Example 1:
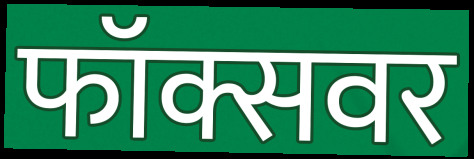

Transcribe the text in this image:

फॉक्सवर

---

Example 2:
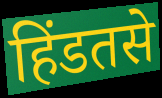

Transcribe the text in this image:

हिंडतसे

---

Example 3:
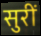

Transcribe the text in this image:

सुरीं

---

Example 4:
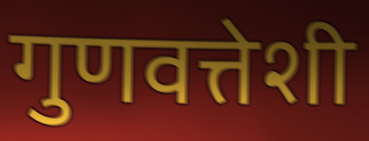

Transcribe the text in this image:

गुणवत्तेशी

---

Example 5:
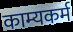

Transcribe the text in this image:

काम्यकर्म